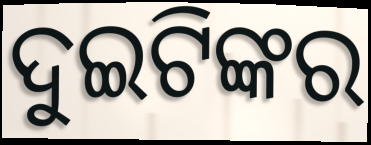
ଦୁଇଟିଙ୍କର